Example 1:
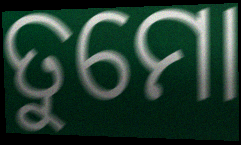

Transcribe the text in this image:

ତୁମୋ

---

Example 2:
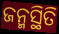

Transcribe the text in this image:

ଜନ୍ମସ୍ଥିତି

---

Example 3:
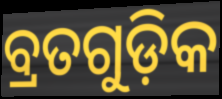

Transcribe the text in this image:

ବ୍ରତଗୁଡ଼ିକ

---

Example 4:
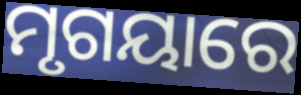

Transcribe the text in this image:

ମୃଗୟାରେ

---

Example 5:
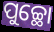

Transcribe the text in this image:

ପୁଚ୍ଛୋ